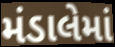
મંડાલેમાં